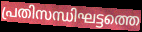
പ്രതിസന്ധിഘട്ടത്തെ